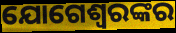
ଯୋଗେଶ୍ଵରଙ୍କର